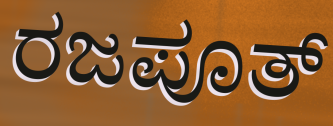
ರಜಪೂತ್